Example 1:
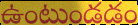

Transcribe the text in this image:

ఉంటుండడం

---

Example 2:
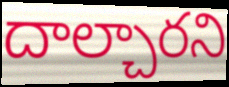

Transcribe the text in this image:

దాల్చారని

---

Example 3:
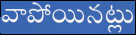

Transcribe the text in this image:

వాపోయినట్లు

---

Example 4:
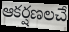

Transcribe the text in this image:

ఆకర్షణలచే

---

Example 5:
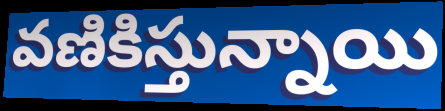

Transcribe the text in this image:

వణికిస్తున్నాయి